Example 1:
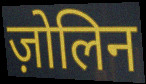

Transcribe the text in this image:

ज़ोलिन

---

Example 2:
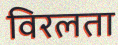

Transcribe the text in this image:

विरलता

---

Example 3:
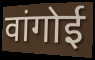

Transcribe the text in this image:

वांगोई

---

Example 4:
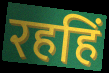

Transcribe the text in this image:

रहहिं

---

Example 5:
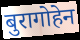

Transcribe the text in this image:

बुरागोहेन